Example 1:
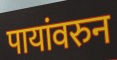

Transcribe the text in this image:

पायांवरुन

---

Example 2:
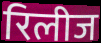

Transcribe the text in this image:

रिलीज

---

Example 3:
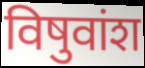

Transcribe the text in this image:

विषुवांश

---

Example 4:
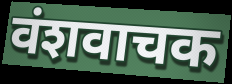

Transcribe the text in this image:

वंशवाचक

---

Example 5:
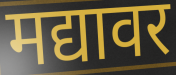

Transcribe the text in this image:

मद्यावर